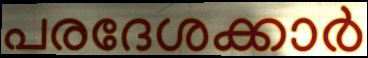
പരദേശക്കാർ